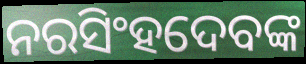
ନରସିଂହଦେବଙ୍କ